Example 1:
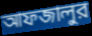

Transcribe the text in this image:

আফজালুর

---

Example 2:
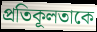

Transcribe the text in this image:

প্রতিকূলতাকে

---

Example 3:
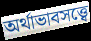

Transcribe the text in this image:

অর্থাভাবসত্ত্বে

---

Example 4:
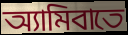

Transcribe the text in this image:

অ্যামিবাতে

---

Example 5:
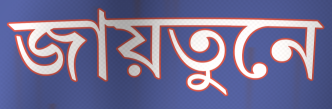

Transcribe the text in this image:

জায়তুনে